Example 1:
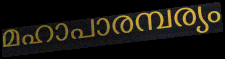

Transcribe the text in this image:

മഹാപാരമ്പര്യം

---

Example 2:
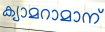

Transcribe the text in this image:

ക്യാമറാമാന്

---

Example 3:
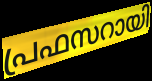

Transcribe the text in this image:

പ്രഫസറായി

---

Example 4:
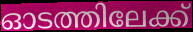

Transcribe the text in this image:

ഓടത്തിലേക്ക്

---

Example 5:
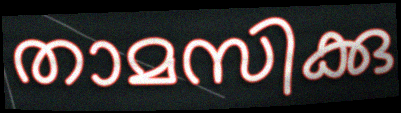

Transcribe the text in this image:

താമസിക്കു